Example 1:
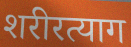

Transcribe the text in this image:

शरीरत्याग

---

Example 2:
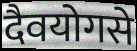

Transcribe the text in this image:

दैवयोगसे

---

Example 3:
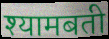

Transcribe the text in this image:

श्यामबती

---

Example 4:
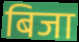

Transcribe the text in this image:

बिजा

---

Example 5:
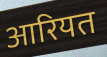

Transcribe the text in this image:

आरियत